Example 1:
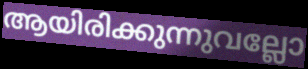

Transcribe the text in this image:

ആയിരിക്കുന്നുവല്ലോ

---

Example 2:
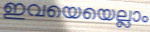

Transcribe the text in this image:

ഇവയെയെല്ലാം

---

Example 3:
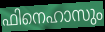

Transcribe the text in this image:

ഫിനെഹാസും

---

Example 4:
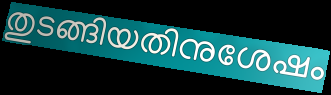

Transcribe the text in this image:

തുടങ്ങിയതിനുശേഷം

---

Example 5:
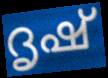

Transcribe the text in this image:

ദൃഷ്